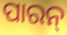
ପାରନ୍